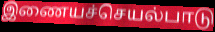
இணையச்செயல்பாடு